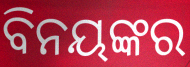
ବିନୟଙ୍କର